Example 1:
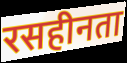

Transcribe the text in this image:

रसहीनता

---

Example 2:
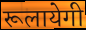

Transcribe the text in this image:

रूलायेगी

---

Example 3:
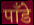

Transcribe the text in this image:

पाँडे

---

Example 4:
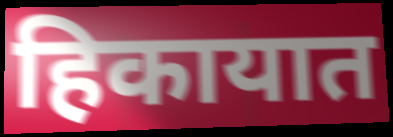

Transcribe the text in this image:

हिकायात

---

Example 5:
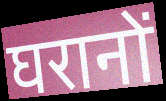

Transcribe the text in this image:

घरानों